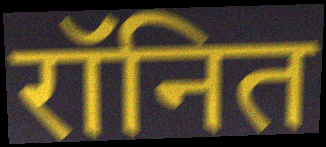
रॉनित